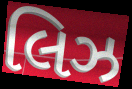
લિઝ